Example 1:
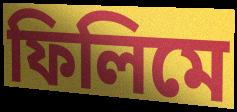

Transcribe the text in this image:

ফিলিমে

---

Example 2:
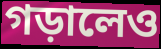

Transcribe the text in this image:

গড়ালেও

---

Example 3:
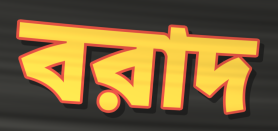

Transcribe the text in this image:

বরাদ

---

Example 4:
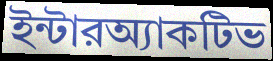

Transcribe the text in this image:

ইন্টারঅ্যাকটিভ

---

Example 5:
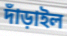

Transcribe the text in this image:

দাঁড়াইল